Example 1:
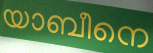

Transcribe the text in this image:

യാബീനെ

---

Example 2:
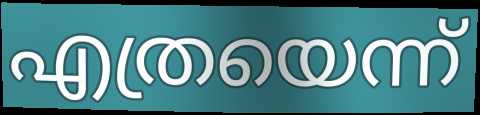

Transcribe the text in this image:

എത്രയെന്ന്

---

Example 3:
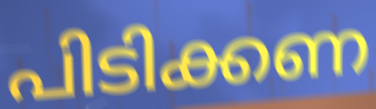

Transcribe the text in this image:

പിടിക്കണ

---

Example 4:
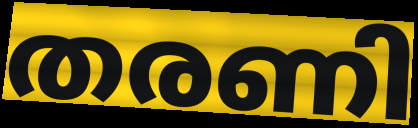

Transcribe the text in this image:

തരണി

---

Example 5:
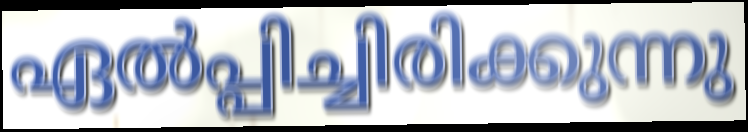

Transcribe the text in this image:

ഏൽപ്പിച്ചിരിക്കുന്നു